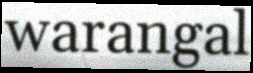
warangal